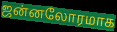
ஜன்னலோரமாக